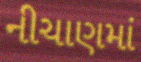
નીચાણમાં